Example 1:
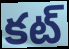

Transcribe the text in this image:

కట్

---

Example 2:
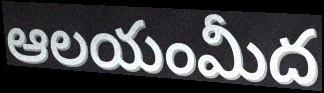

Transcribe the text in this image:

ఆలయంమీద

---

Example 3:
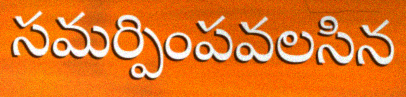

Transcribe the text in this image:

సమర్పింపవలసిన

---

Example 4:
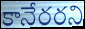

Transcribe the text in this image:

కానేరరని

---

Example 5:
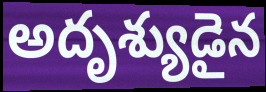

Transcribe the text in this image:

అదృశ్యుడైన